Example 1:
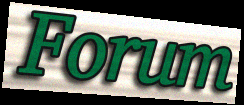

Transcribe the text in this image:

Forum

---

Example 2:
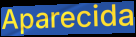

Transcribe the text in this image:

Aparecida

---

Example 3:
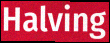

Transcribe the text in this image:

Halving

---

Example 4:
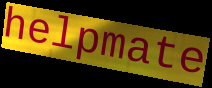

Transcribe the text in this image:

helpmate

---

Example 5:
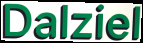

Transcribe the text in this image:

Dalziel